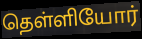
தெள்ளியோர்